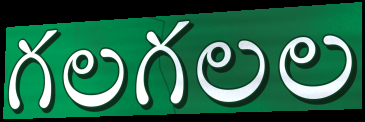
గలగలల